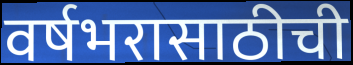
वर्षभरासाठीची